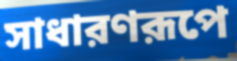
সাধারণরূপে